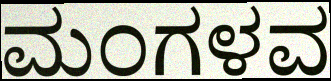
ಮಂಗಳವ